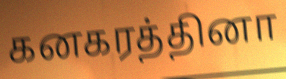
கனகரத்தினா